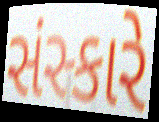
સંસ્કારે